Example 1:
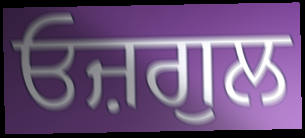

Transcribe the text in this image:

ਓਜ਼ਗੁਲ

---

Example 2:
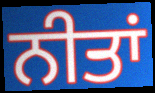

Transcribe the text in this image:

ਨੀਤਾਂ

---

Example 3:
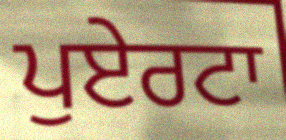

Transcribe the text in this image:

ਪੁਏਰਟਾ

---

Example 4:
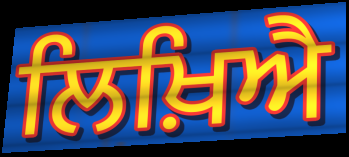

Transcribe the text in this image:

ਲਿਖ਼ਿਐ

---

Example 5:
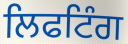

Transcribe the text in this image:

ਲਿਫਟਿੰਗ